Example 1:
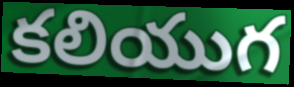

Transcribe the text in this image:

కలియుగ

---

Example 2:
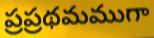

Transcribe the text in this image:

ప్రప్రథమముగా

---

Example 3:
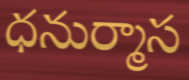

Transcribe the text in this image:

ధనుర్మాస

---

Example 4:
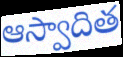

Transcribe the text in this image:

ఆస్వాదిత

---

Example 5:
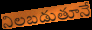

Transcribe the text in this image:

నిలబడుతూనే